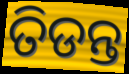
ତିଡନ୍ତ